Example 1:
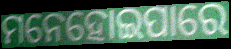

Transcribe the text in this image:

ମନେହୋଇପାରେ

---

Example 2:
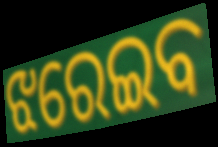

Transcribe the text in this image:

ଝରେଇବ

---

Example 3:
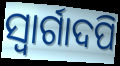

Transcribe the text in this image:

ସ୍ୱାର୍ଗାଦପି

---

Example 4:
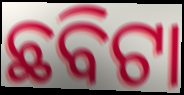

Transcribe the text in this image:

ଛବିଟା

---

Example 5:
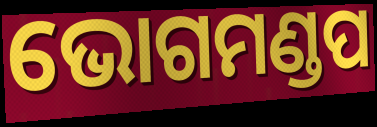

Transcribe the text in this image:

ଭୋଗମଣ୍ଡପ